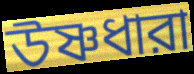
উষ্ণধারা